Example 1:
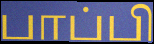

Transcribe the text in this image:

பாப்பி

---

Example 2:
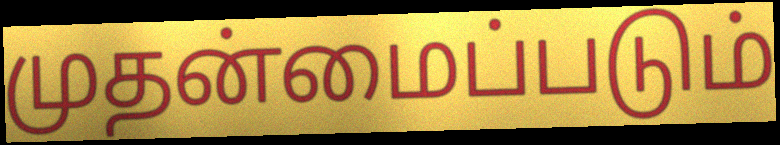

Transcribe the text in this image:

முதன்மைப்படும்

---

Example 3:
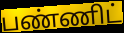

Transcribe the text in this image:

பண்ணிட்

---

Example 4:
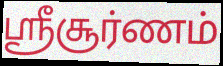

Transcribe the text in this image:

ஸ்ரீசூர்ணம்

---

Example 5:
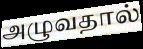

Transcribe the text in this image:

அழுவதால்